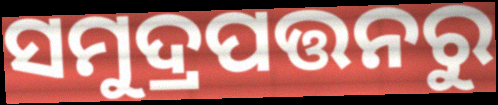
ସମୁଦ୍ରପତ୍ତନରୁ